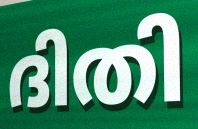
ദിതി